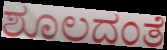
ಶೂಲದಂತೆ